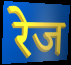
रेज